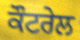
ਕੌਟਰੇਲ